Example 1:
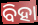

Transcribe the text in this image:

ବିହା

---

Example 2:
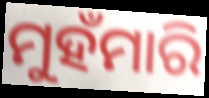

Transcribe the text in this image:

ମୁହଁମାରି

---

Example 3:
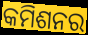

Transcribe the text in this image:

କମିଶନର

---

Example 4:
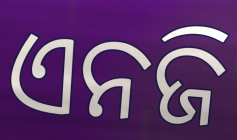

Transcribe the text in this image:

ଏନଜି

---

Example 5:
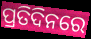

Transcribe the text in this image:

ପ୍ରତିଦିନରେ